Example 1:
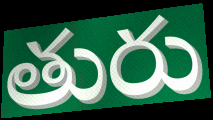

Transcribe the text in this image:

తురు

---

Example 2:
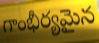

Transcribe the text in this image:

గాంభీర్యమైన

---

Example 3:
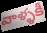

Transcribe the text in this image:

వాళ్ళకీ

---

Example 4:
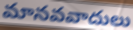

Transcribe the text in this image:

మానవవాదులు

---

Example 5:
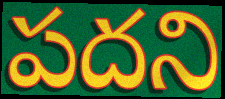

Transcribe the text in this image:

పదని